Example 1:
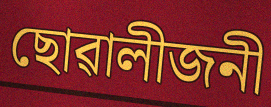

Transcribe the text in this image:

ছোৱালীজনী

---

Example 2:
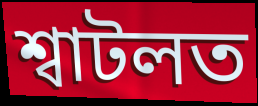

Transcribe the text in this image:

শ্বাটলত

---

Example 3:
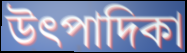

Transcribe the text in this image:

উৎপাদিকা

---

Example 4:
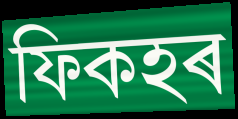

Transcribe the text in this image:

ফিকহৰ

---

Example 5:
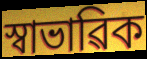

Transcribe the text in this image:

স্বাভাৱিক